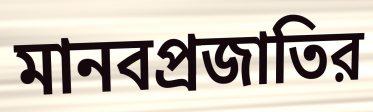
মানবপ্রজাতির